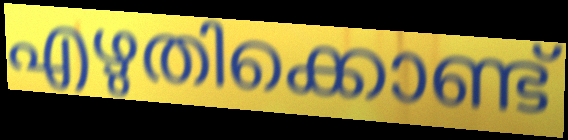
എഴുതിക്കൊണ്ട്